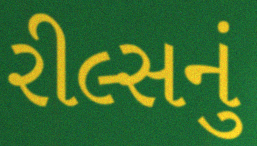
રીલ્સનું